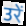
उरें